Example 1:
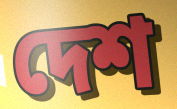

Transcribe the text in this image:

দেশ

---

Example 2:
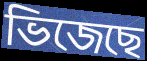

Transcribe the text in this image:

ভিজেছে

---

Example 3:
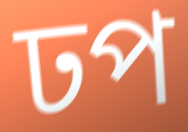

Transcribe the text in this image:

ঢপ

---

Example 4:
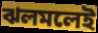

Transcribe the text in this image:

ঝলমলেই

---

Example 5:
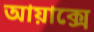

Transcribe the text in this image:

আয়াক্সে